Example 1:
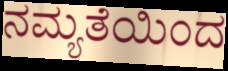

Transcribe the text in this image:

ನಮ್ಯತೆಯಿಂದ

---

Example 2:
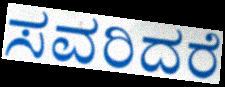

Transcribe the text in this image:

ಸವರಿದರೆ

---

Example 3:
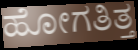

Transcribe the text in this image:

ಹೋಗತಿತ್ತ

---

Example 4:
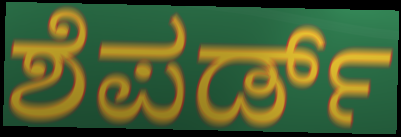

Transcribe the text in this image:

ಶೆಪರ್ಡ್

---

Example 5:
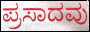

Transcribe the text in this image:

ಪ್ರಸಾದವು